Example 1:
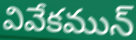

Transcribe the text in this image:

వివేకమున్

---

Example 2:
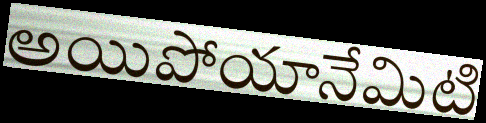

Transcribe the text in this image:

అయిపోయానేమిటి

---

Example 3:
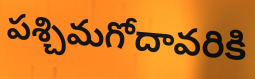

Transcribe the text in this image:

పశ్చిమగోదావరికి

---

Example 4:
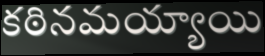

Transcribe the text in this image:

కఠినమయ్యాయి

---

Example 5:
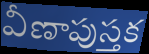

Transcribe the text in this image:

వీణాపుస్తక